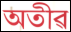
অতীৱ